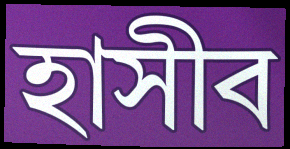
হাসীব